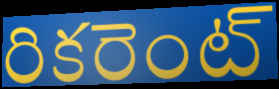
రికరెంట్